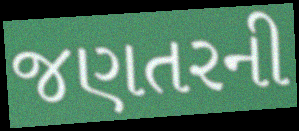
જણતરની